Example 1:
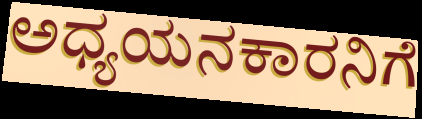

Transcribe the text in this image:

ಅಧ್ಯಯನಕಾರನಿಗೆ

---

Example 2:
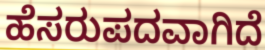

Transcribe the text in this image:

ಹೆಸರುಪದವಾಗಿದೆ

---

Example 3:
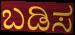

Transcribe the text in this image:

ಬಡಿಸ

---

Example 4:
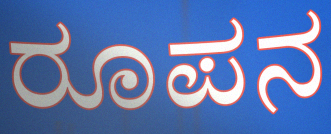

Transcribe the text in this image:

ರೂಪನ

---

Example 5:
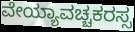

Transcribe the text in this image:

ವೇಯ್ಯಾವಚ್ಚಕರಸ್ಸ